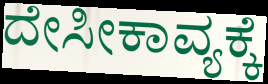
ದೇಸೀಕಾವ್ಯಕ್ಕೆ